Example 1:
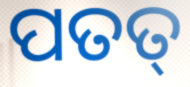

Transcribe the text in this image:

ପତତ୍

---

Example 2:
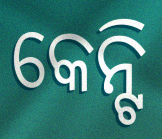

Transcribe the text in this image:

କେନ୍ଟି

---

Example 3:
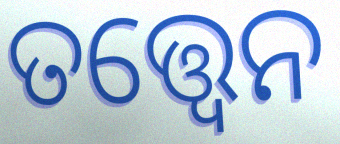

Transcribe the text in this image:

ତତ୍ତ୍ଵେନ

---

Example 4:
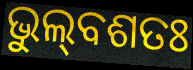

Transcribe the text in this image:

ଭୁଲ୍‌ବଶତଃ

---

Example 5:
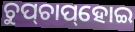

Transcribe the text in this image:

ଚୁପ୍‌ଚାପ୍‌ହୋଇ